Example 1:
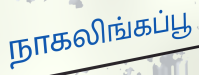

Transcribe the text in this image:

நாகலிங்கப்பூ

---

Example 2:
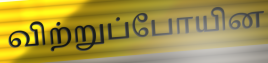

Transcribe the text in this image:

விற்றுப்போயின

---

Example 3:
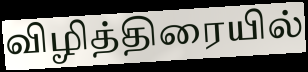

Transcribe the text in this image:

விழித்திரையில்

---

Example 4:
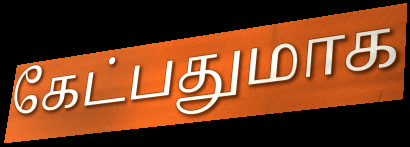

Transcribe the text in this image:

கேட்பதுமாக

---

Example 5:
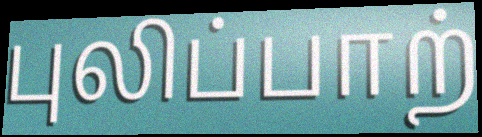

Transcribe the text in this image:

புலிப்பாற்